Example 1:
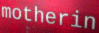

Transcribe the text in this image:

motherin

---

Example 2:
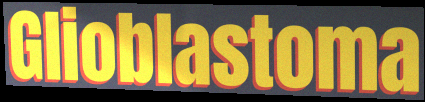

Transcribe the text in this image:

Glioblastoma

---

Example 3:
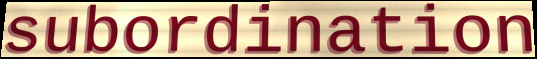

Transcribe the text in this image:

subordination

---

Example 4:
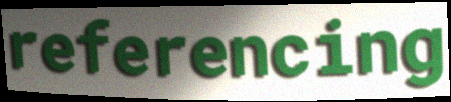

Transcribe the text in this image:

referencing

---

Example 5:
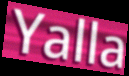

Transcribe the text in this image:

Yalla